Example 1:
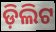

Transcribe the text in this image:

ଡ଼ିଲିଟ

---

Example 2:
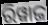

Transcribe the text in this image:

ରିୱାଜ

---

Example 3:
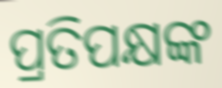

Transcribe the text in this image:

ପ୍ରତିପକ୍ଷଙ୍କ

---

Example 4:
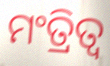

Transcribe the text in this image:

ମଂତ୍ରିତ୍ୱ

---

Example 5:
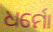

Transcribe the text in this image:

ଧର୍ମୋ